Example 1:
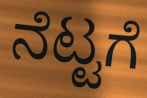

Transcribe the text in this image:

ನೆಟ್ಟಗೆ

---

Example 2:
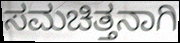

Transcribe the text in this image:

ಸಮಚಿತ್ತನಾಗಿ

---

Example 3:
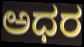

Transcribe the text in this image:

ಅಧರ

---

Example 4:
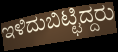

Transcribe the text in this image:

ಇಳಿದುಬಿಟ್ಟಿದ್ದರು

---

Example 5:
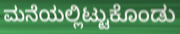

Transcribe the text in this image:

ಮನೆಯಲ್ಲಿಟ್ಟುಕೊಂಡು